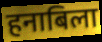
हनाबिला